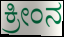
ಕ್ರೀಂನ